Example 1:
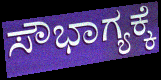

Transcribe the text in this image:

ಸೌಭಾಗ್ಯಕ್ಕೆ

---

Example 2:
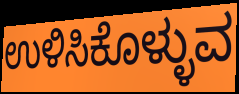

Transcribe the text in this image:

ಉಳಿಸಿಕೊಳ್ಳುವ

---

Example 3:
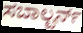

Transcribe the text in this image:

ಸಬಾಲ್ಟರ್ನ್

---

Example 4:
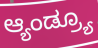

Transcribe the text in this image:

ಆ್ಯಂಡ್ರ್ಯೂ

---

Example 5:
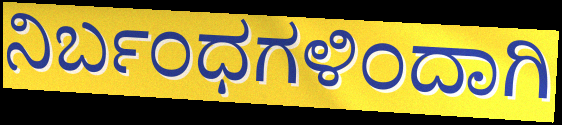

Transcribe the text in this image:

ನಿರ್ಬಂಧಗಳಿಂದಾಗಿ